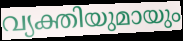
വ്യക്തിയുമായും